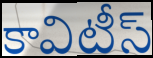
కావిటీస్